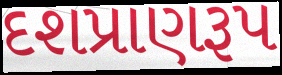
દશપ્રાણરૂપ